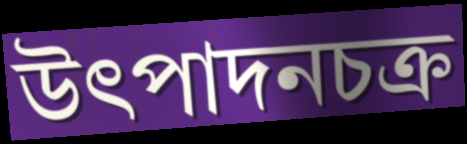
উৎপাদনচক্র